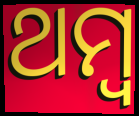
ଥମ୍ବ